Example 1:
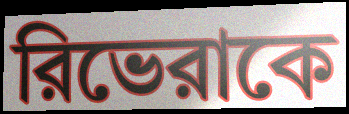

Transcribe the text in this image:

রিভেরাকে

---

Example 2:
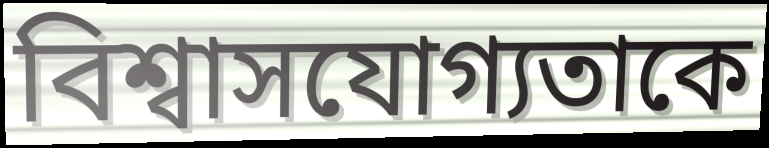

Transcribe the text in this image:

বিশ্বাসযোগ্যতাকে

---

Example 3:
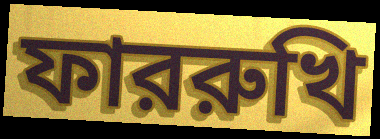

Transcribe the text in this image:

ফাররুখি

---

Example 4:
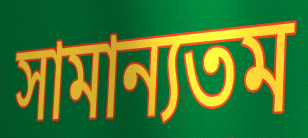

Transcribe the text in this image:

সামান্যতম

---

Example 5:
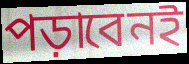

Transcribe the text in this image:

পড়াবেনই